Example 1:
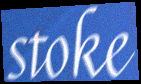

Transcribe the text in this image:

stoke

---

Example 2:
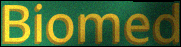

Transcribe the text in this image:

Biomed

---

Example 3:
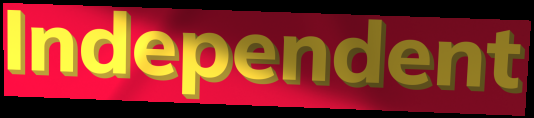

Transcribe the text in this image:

Independent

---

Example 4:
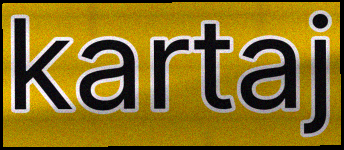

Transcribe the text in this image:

kartaj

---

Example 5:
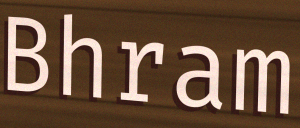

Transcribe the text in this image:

Bhram